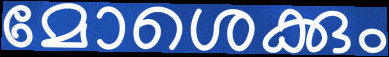
മോശെക്കും